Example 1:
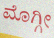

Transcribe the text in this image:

ಮೊಗ್ಗೀ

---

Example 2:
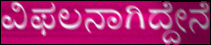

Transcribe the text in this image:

ವಿಫಲನಾಗಿದ್ದೇನೆ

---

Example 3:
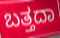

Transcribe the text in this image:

ಬತ್ತದಾ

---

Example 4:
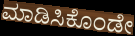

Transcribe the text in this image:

ಮಾಡಿಸಿಕೊಂಡೇ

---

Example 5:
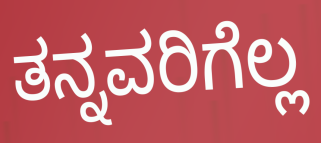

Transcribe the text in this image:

ತನ್ನವರಿಗೆಲ್ಲ